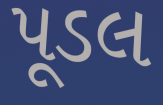
પૂડલ